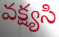
వక్ష్యసి